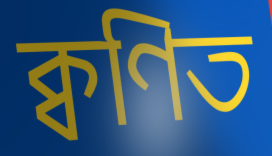
ক্বণিত